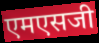
एमएसजी